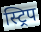
स्ट्रिप